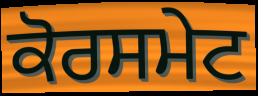
ਕੋਰਸਮੇਟ